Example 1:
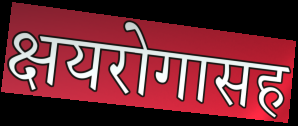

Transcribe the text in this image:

क्षयरोगासह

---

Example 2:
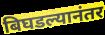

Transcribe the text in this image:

बिघडल्यानंतर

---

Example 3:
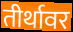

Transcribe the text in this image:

तीर्थावर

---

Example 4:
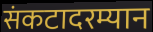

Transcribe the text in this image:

संकटादरम्यान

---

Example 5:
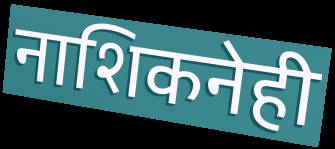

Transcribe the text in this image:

नाशिकनेही